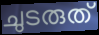
ചുടരുത്